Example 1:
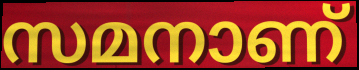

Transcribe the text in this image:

സമനാണ്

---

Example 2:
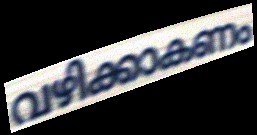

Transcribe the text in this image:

വഴിക്കാകണം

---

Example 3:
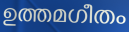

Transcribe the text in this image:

ഉത്തമഗീതം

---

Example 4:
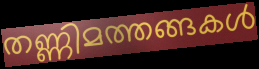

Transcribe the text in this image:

തണ്ണിമത്തങ്ങകൾ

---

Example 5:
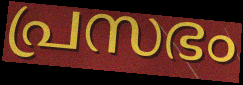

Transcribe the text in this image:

പ്രസഭം